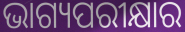
ଭାଗ୍ୟପରୀକ୍ଷାର